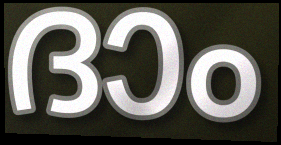
ദാം